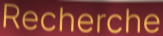
Recherche